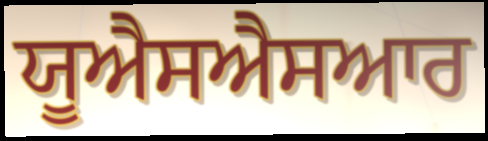
ਯੂਐਸਐਸਆਰ